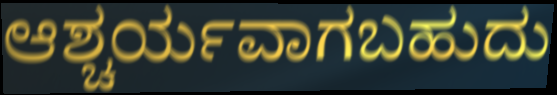
ಆಶ್ಚರ್ಯವಾಗಬಹುದು